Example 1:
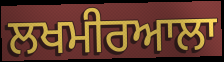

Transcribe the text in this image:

ਲਖਮੀਰਆਲਾ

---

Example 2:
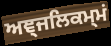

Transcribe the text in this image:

ਅਞ੍ਜਲਿਕਮ੍ਮਂ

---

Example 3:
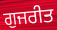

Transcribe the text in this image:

ਗੁਜਰੀਤ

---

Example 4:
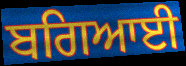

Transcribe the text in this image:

ਬਗਿਆਈ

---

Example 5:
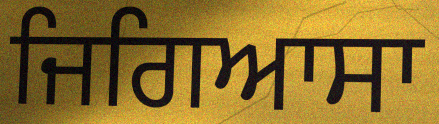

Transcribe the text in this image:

ਜਿਗਿਆਸਾ